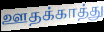
ஊதக்காத்து